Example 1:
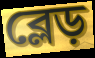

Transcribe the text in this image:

ব্লেড়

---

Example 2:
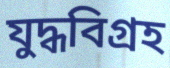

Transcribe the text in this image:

যুদ্ধবিগ্রহ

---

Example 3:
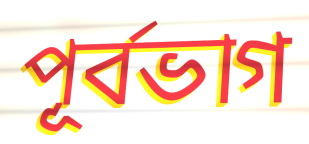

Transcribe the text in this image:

পূর্বভাগ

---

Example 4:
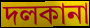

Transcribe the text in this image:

দলকানা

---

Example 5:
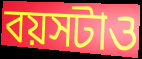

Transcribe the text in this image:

বয়সটাও